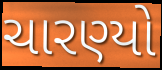
ચારણ્યો